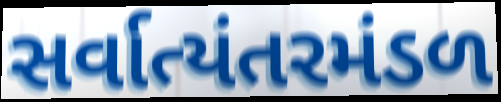
સર્વાત્યંતરમંડળ